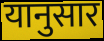
यानुसार